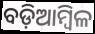
ବଡ଼ିଆମ୍ବିଳ